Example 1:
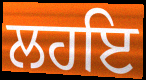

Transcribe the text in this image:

ਲਹਇ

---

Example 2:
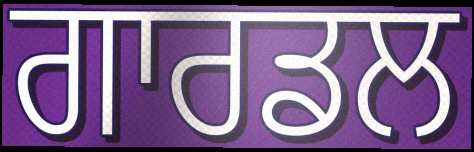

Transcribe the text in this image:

ਗਾਰਡਲ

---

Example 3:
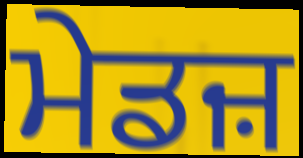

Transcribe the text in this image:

ਮੇਡਜ਼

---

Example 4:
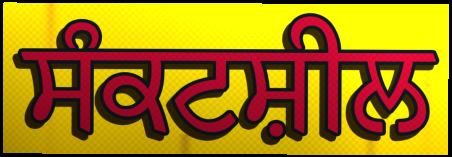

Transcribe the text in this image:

ਸੰਕਟਸ਼ੀਲ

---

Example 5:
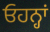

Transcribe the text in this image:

ਓਹਨ੍ਹਾਂ